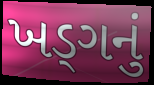
ખડ્ગનું